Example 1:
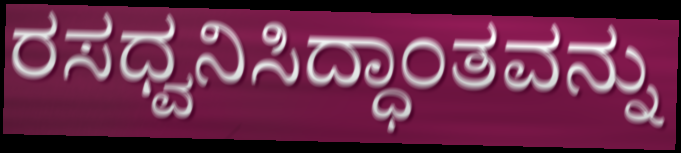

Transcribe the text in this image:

ರಸಧ್ವನಿಸಿದ್ಧಾಂತವನ್ನು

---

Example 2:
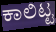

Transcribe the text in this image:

ಕಾಲಿಟ್ಟ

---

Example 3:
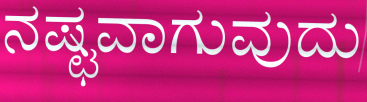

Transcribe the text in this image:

ನಷ್ಟವಾಗುವುದು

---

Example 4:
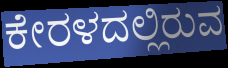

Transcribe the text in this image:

ಕೇರಳದಲ್ಲಿರುವ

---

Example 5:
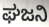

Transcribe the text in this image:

ಘಜನಿ